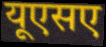
यूएसए